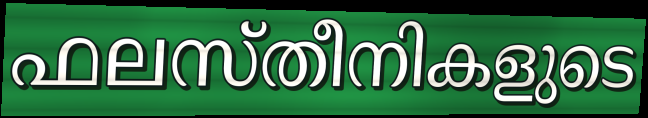
ഫലസ്തീനികളുടെ